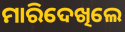
ମାରିଦେଖିଲେ